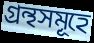
গ্রন্থসমূহে